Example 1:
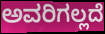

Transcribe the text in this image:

ಅವರಿಗಲ್ಲದೆ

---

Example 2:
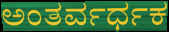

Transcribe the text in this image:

ಅಂತರ್ವರ್ಧಕ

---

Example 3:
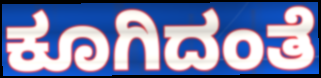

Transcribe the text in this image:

ಕೂಗಿದಂತೆ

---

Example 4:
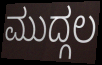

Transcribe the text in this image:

ಮುದ್ಗಲ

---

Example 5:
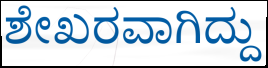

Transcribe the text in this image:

ಶೇಖರವಾಗಿದ್ದು